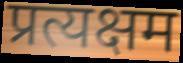
प्रत्यक्षम